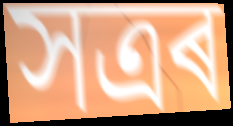
সত্ৰৰ